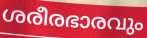
ശരീരഭാരവും